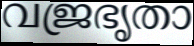
വജ്രഭൃതാ